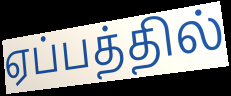
ஏப்பத்தில்